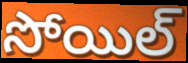
సోయిల్